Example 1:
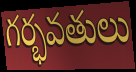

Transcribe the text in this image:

గర్భవతులు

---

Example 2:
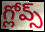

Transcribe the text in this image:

గ్లోవ్స్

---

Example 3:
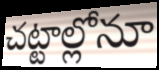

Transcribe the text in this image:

చట్టాల్లోనూ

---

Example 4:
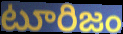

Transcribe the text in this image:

టూరిజం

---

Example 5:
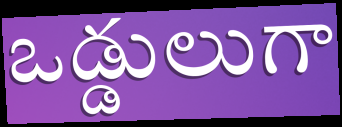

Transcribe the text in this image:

ఒడ్డులుగా